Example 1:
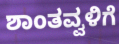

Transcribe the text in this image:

ಶಾಂತವ್ವಳಿಗೆ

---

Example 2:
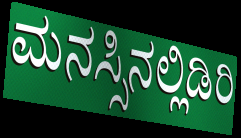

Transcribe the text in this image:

ಮನಸ್ಸಿನಲ್ಲಿಡಿರಿ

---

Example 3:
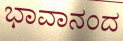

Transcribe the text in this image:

ಭಾವಾನಂದ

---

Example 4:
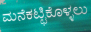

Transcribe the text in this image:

ಮನೆಕಟ್ಟಿಕೊಳ್ಳಲು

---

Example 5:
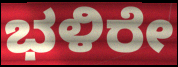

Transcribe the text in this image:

ಭಳಿರೇ